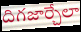
దిగజార్చేలా